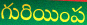
గురియింప